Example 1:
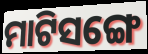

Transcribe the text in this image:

ମାଟିସଙ୍ଗେ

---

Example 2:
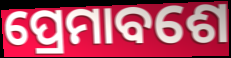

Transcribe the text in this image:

ପ୍ରେମାବଶେ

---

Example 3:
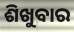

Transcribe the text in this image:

ଶିଖୁବାର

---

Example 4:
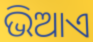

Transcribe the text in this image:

ଭିଆଏ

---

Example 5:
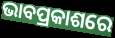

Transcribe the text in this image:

ଭାବପ୍ରକାଶରେ